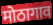
मोठागाव